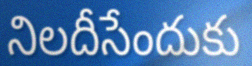
నిలదీసేందుకు